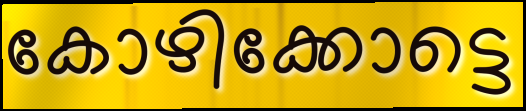
കോഴിക്കോട്ടെ